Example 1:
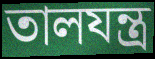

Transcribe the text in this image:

তালযন্ত্র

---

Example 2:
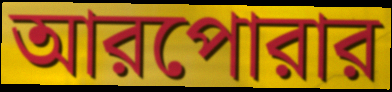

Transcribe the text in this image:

আরপোরার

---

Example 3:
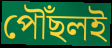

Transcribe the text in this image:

পৌঁছলই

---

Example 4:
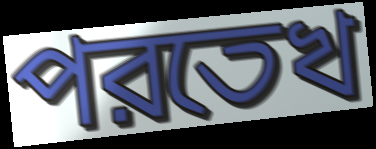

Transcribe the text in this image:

পরতেখ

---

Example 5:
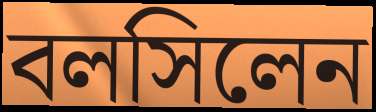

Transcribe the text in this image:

বলসিলেন